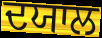
ਦਯਾਲ